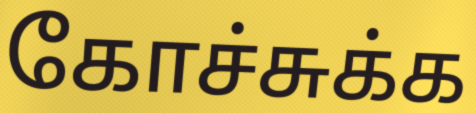
கோச்சுக்க